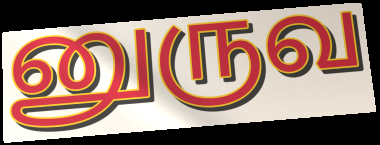
னுருவ